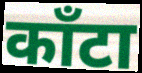
काँटा